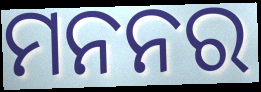
ମନନର